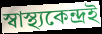
স্বাস্থ্যকেন্দ্ৰই